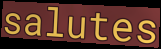
salutes